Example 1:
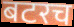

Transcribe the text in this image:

बटरच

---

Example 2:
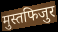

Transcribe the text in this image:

मुस्तफिजुर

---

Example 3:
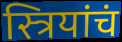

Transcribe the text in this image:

स्त्रियांचं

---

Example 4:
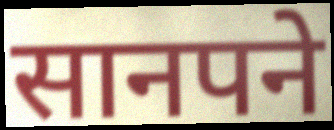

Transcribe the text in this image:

सानपने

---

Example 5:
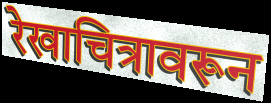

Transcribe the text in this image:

रेखाचित्रावरून